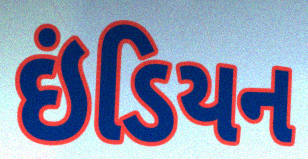
ઇંડિયન